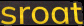
sroat